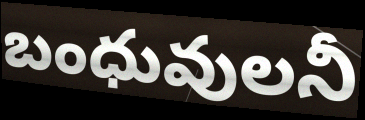
బంధువులనీ